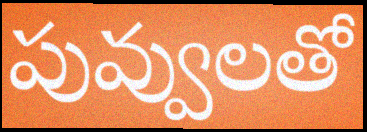
పువ్వులతో